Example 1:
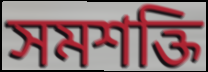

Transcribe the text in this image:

সমশক্তি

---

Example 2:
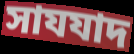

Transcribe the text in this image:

সাযযাদ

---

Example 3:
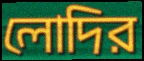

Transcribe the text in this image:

লোদির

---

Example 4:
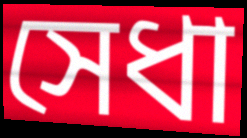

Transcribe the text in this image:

সেধা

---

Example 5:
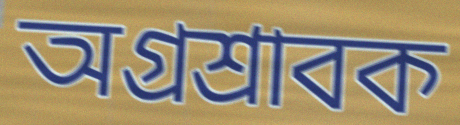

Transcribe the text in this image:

অগ্রশ্রাবক